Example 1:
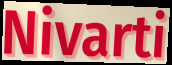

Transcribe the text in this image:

Nivarti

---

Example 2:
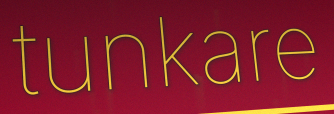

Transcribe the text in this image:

tunkare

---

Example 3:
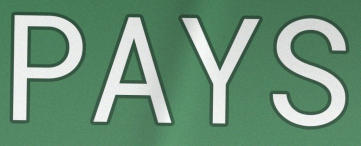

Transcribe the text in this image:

PAYS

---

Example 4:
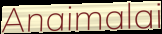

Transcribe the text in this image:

Anaimalai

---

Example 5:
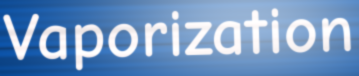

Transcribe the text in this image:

Vaporization